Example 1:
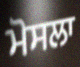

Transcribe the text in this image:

ਮੋਸਲਾ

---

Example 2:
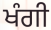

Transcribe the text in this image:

ਖੰਗੀ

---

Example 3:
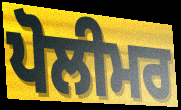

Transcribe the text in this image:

ਪੋਲੀਮਰ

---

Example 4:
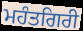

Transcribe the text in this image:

ਮਹੰਤਗਿਰੀ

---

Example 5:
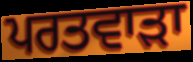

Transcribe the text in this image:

ਪਰਤਵਾੜਾ